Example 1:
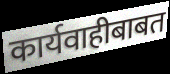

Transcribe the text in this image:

कार्यवाहीबाबत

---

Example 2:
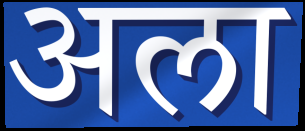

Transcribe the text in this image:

अला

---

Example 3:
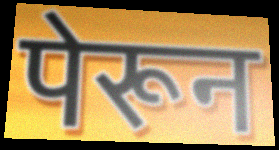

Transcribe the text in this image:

पेरून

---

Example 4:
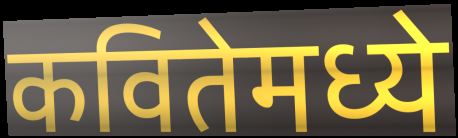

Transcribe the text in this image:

कवितेमध्ये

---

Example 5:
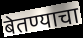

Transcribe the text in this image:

बेतण्याचा